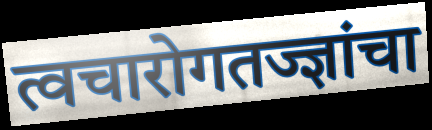
त्वचारोगतज्ज्ञांचा